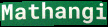
Mathangi